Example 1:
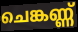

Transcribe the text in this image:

ചെങ്കണ്ണ്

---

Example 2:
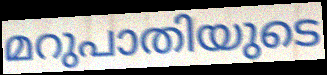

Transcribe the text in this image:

മറുപാതിയുടെ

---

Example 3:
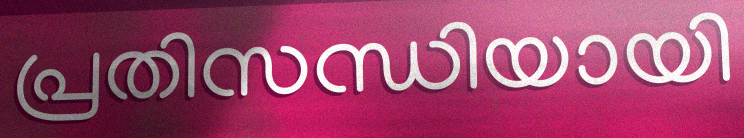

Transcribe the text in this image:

പ്രതിസന്ധിയായി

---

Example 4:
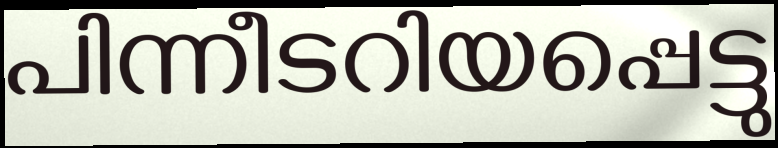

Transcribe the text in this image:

പിന്നീടറിയപ്പെട്ടു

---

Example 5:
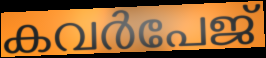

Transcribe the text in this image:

കവർപേജ്